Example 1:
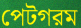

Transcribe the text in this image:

পেটগরম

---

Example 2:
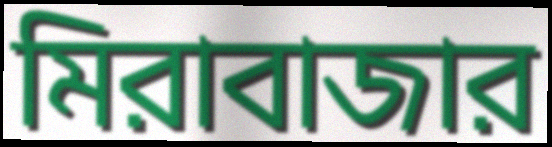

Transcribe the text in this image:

মিরাবাজার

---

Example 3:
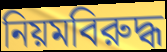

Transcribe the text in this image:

নিয়মবিরুদ্ধ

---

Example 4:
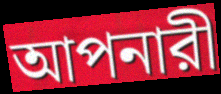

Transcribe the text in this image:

আপনারী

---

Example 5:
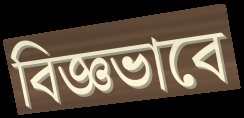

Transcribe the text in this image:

বিজ্ঞভাবে